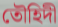
তৌহিদী